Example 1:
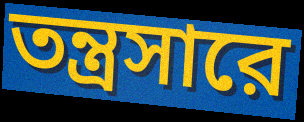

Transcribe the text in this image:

তন্ত্রসারে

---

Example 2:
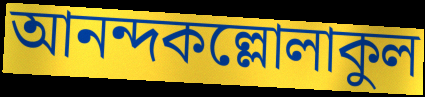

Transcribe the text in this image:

আনন্দকল্লোলাকুল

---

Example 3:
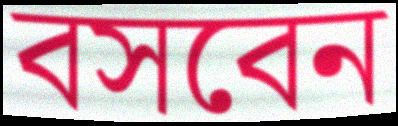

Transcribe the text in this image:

বসবেন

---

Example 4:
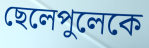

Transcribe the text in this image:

ছেলেপুলেকে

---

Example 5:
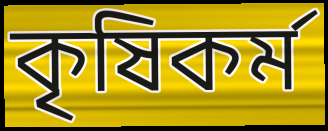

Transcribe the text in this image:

কৃষিকর্ম